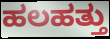
ಹಲಹತ್ತು